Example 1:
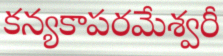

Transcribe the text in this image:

కన్యకాపరమేశ్వరీ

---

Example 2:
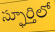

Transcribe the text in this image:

స్ఫూర్తిలో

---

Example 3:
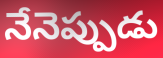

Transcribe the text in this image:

నేనెప్పుడు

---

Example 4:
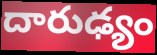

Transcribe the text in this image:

దారుఢ్యం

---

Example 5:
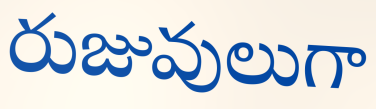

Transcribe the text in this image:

రుజువులుగా